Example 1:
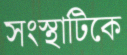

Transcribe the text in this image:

সংস্থাটিকে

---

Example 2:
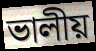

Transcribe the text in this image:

ভালীয়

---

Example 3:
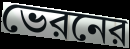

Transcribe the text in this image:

ভেরনের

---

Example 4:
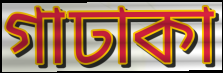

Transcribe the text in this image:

গাঢাকা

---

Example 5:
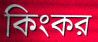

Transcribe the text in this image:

কিংকর